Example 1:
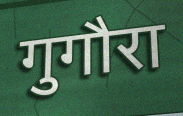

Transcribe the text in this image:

गुगौरा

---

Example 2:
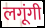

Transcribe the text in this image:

लगूंगी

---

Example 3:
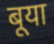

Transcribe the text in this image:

बूया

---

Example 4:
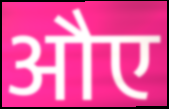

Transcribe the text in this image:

औए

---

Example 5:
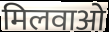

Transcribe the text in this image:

मिलवाओ